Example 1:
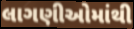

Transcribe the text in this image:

લાગણીઓમાંથી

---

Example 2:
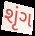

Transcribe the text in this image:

શૃંગ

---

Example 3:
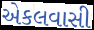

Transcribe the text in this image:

એકલવાસી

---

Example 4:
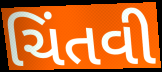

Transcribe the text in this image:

ચિંતવી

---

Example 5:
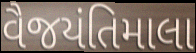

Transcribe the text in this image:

વૈજયંતિમાલા